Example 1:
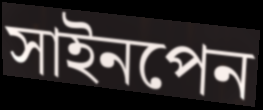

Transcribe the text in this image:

সাইনপেন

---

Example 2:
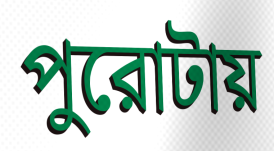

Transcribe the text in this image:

পুরোটায়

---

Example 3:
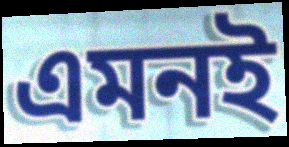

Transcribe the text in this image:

এমনই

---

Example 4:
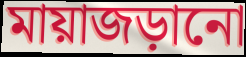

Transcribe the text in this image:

মায়াজড়ানো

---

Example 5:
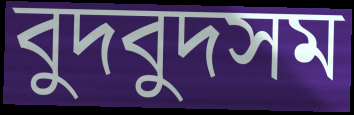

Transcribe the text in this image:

বুদবুদসম